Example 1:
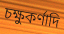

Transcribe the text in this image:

চক্ষুকর্ণাদি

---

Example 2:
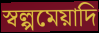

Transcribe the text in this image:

স্বল্পমেয়াদি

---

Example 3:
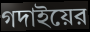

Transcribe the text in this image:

গদাইয়ের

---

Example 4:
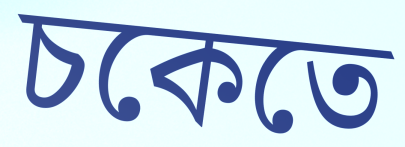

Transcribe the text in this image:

চকেতে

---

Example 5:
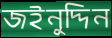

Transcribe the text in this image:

জইনুদ্দিন